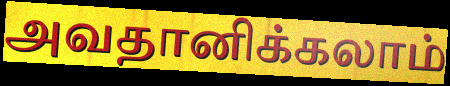
அவதானிக்கலாம்